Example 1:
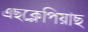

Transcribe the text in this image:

এছক্লেপিয়াছ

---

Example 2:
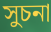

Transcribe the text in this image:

সুচনা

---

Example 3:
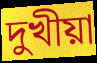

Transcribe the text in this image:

দুখীয়া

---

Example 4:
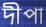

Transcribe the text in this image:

দীপা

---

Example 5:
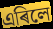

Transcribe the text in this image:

এৰিলে